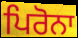
ਪਿਰੋਨਾ